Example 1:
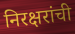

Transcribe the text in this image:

निरक्षरांची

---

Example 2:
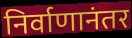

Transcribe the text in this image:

निर्वाणानंतर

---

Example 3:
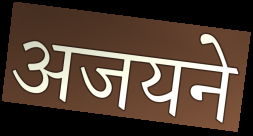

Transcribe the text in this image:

अजयने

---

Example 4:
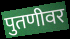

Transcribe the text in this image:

पुतणीवर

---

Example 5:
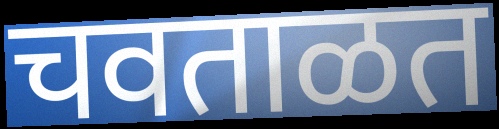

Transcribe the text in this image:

चवताळत